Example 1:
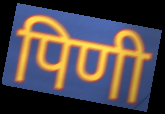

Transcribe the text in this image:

पिणी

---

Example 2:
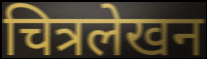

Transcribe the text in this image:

चित्रलेखन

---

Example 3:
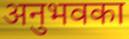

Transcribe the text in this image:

अनुभवका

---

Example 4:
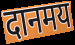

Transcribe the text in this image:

दानमय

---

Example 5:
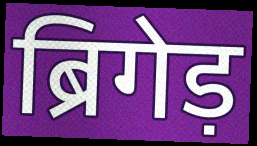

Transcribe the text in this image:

ब्रिगेड़